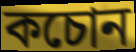
কচোন